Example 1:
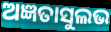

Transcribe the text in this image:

ଅଜ୍ଞତାସୁଲଭ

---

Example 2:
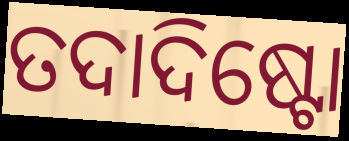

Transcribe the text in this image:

ତଦାଦିଷ୍ଟୋ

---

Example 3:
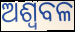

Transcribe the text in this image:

ଅଶ୍ୱବଳ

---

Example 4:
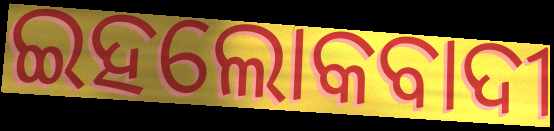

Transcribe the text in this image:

ଇହଲୋକବାଦୀ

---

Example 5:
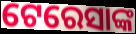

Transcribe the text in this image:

ଟେରେସାଙ୍କ